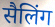
सैलिंग